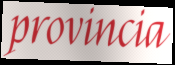
provincia